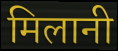
मिलानी